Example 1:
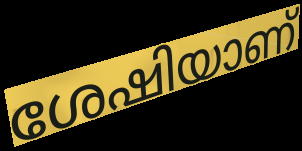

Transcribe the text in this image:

ശേഷിയാണ്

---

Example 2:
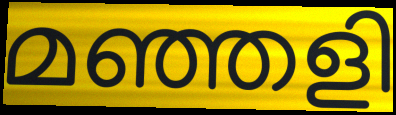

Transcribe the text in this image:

മഞ്ഞളി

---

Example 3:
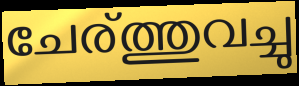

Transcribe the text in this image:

ചേര്ത്തുവച്ചു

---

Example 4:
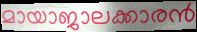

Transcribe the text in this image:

മായാജാലക്കാരൻ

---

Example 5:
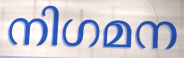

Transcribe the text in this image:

നിഗമന